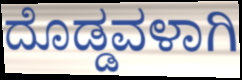
ದೊಡ್ಡವಳಾಗಿ